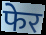
फेर